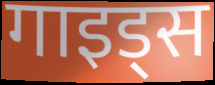
गाइड्स